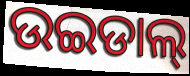
ଉଇଡାଲ୍